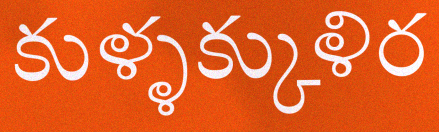
కుళ్ళక్కుళిర